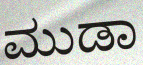
ಮುಡಾ